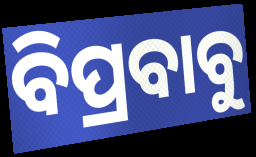
ବିପ୍ରବାବୁ